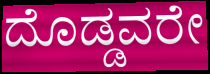
ದೊಡ್ಡವರೇ